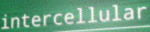
intercellular